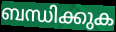
ബന്ധിക്കുക